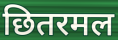
छितरमल